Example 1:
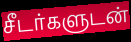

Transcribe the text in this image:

சீடர்களுடன்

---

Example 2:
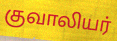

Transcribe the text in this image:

குவாலியர்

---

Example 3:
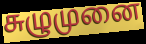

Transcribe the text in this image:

சுழுமுனை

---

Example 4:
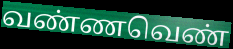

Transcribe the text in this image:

வண்ணவெண்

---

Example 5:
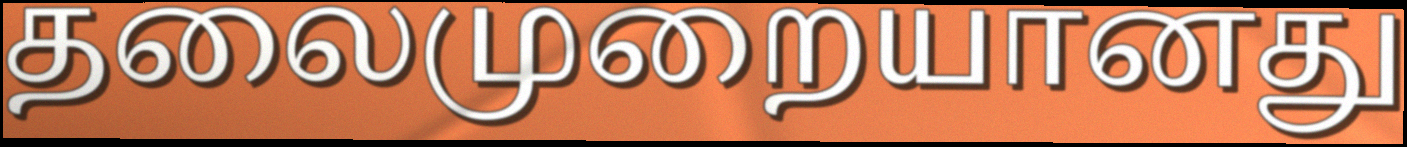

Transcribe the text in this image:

தலைமுறையானது